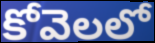
కోవెలలో